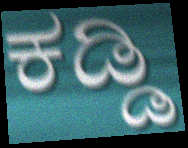
ಕಡ್ಡಿ